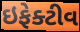
ઇફેક્ટીવ